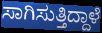
ಸಾಗಿಸುತ್ತಿದ್ದಾಳೆ